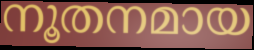
നൂതനമായ